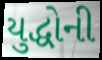
યુદ્ધોની